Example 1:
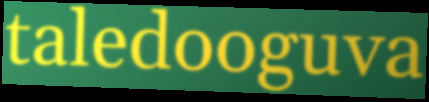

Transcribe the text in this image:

taledooguva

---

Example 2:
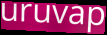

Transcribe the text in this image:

uruvap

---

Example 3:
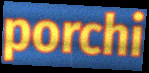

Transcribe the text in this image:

porchi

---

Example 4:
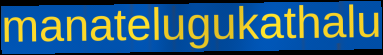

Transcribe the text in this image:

manatelugukathalu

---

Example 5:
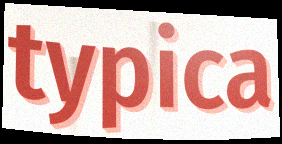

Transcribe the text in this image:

typica